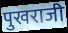
पुखराजी